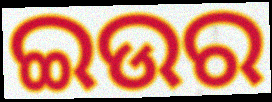
ଇଉର